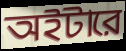
অইটারে